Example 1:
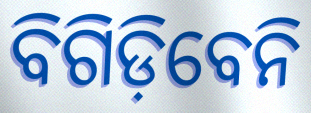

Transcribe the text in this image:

ବିଗିଡ଼ିବେନି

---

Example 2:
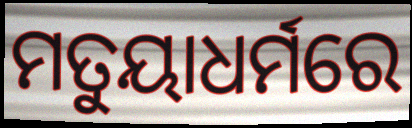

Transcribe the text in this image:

ମତୁୟାଧର୍ମରେ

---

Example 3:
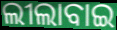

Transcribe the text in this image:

ଲୀଲାବାଇ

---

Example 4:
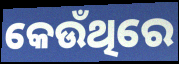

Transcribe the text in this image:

କେଉଁଥିରେ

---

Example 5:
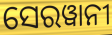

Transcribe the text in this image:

ସେରୱାନୀ